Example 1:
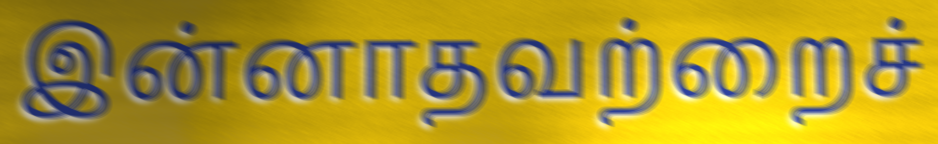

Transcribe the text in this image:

இன்னாதவற்றைச்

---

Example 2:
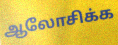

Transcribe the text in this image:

ஆலோசிக்க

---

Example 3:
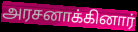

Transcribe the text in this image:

அரசனாக்கினார்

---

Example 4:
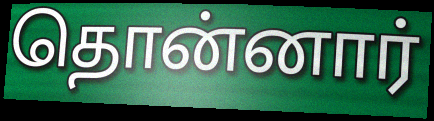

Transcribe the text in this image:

தொன்னார்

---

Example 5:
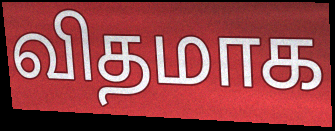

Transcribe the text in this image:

விதமாக